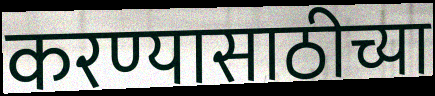
करण्यासाठीच्या